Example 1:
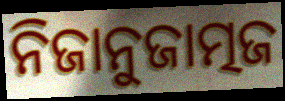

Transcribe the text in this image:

ନିଜାନୁଜାତ୍ମଜ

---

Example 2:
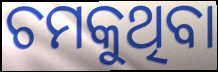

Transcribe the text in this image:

ଚମକୁଥିବା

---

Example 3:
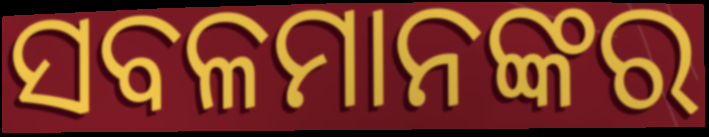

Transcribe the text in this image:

ସବଳମାନଙ୍କର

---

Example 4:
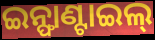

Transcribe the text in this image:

ଇନ୍ଫାଣ୍ଟାଇଲ୍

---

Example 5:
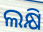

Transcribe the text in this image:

ଲକ୍ଷି